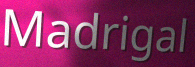
Madrigal